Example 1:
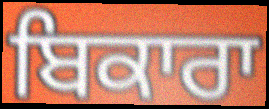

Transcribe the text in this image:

ਬਿਕਾਰਾ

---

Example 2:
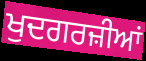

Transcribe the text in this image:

ਖੁਦਗਰਜ਼ੀਆਂ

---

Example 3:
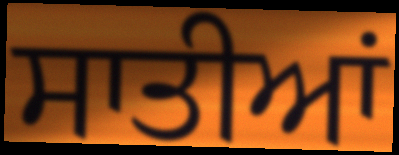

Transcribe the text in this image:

ਸਾਤੀਆਂ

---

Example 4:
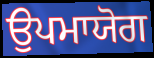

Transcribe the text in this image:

ਉਪਮਾਯੋਗ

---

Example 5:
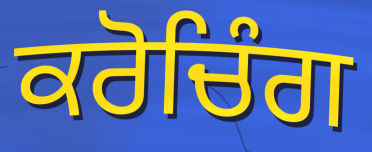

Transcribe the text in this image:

ਕਰੋਚਿੰਗ